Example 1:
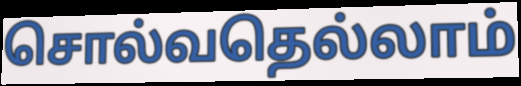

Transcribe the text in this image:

சொல்வதெல்லாம்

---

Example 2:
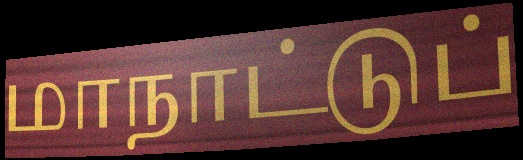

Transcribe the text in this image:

மாநாட்டுப்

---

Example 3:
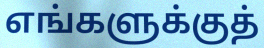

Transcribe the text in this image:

எங்களுக்குத்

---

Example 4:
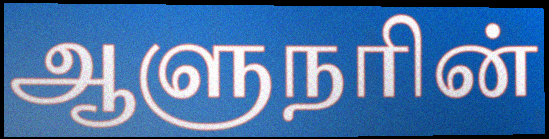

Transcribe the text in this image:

ஆளுநரின்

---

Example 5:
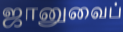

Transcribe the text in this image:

ஜானுவைப்